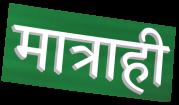
मात्राही